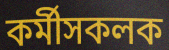
কৰ্মীসকলক